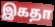
இகதா